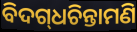
ବିଦଗ୍‌ଧଚିନ୍ତାମଣି